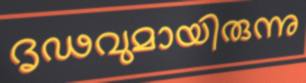
ദൃഢവുമായിരുന്നു